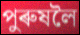
পুৰুষলৈ